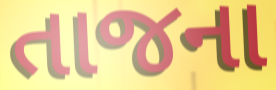
તાજના